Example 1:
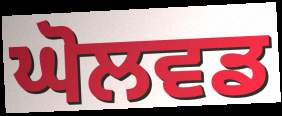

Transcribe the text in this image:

ਘੋਲਵਡ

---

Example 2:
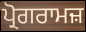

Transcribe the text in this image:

ਪ੍ਰੋਗਰਾਮਜ਼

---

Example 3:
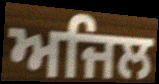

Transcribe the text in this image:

ਅਜਿਲ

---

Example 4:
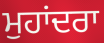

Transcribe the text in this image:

ਮੁਹਾਂਦਰਾ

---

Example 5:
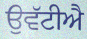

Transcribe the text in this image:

ਉਵੱਟੀਐ